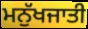
ਮਨੁੱਖਜਾਤੀ